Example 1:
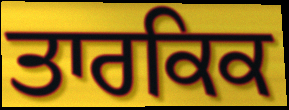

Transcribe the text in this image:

ਤਾਰਕਿਕ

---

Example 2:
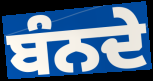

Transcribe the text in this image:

ਬੰਨਦੇ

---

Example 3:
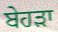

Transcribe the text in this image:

ਬੇਹੜਾ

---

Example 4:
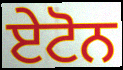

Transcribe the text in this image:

ਏਟੋਨ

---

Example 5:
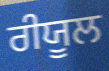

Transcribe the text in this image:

ਰੀਯੂਲ